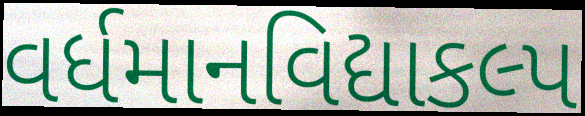
વર્ધમાનવિદ્યાકલ્પ